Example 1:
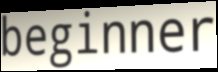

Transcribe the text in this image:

beginner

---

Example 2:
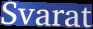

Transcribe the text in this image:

Svarat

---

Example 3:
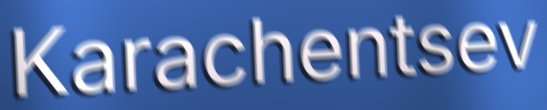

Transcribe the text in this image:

Karachentsev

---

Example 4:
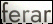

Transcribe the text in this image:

ferar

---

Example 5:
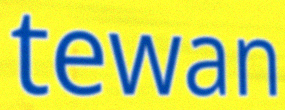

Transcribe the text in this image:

tewan